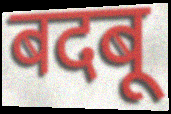
बदबू